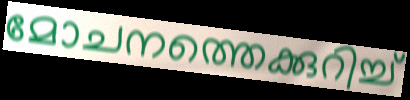
മോചനത്തെക്കുറിച്ച്